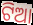
ଟିଆ